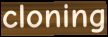
cloning